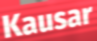
Kausar